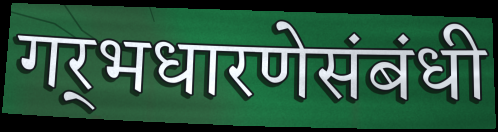
गर्भधारणेसंबंधी